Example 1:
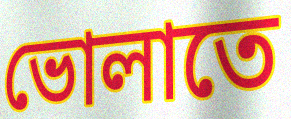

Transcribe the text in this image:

ভোলাতে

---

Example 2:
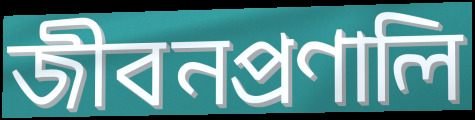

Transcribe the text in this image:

জীবনপ্রণালি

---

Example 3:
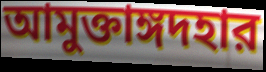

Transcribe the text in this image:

আমুক্তাঙ্গদহার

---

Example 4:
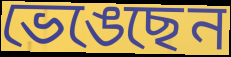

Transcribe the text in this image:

ভেঙেছেন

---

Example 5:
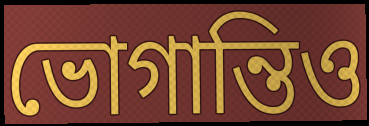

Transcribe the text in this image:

ভোগান্তিও